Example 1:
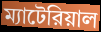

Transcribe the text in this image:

ম্যাটেরিয়াল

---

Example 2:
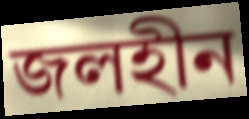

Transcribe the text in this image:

জলহীন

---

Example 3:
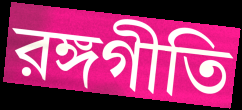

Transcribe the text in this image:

রঙ্গগীতি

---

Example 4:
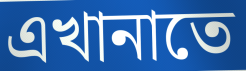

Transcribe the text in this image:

এখানাতে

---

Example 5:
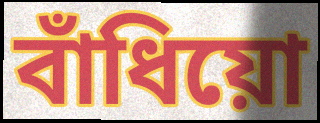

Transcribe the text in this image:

বাঁধিয়ো